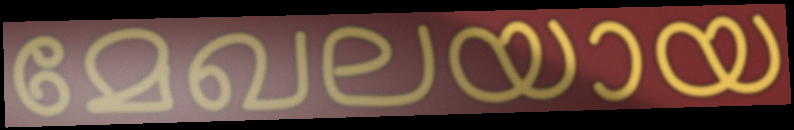
മേഖലയായ